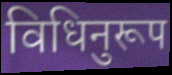
विधिनुरूप